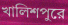
খালিশপুরে